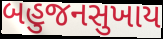
બહુજનસુખાય